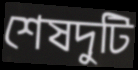
শেষদুটি